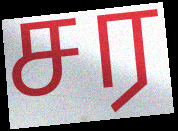
சர